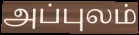
அப்புலம்